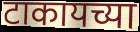
टाकायच्या